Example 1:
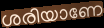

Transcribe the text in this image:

ശരിയാണേ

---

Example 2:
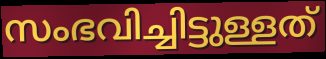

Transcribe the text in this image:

സംഭവിച്ചിട്ടുള്ളത്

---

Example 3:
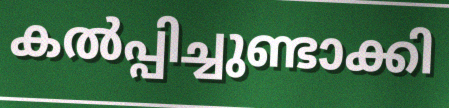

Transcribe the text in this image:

കൽപ്പിച്ചുണ്ടാക്കി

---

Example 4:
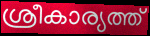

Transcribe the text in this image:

ശ്രീകാര്യത്ത്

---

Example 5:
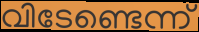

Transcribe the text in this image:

വിടേണ്ടെന്ന്